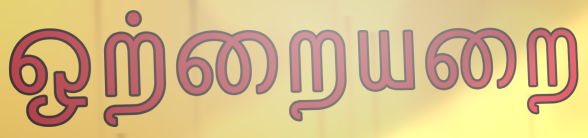
ஒற்றையறை